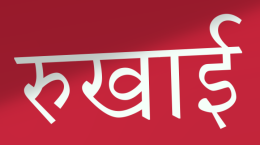
रुखाई